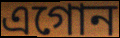
এগোন